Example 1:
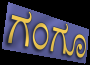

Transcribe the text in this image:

ಗಂಗೂ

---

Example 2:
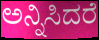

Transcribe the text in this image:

ಅನ್ನಿಸಿದರೆ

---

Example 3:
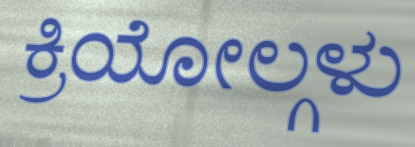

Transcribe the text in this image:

ಕ್ರಿಯೋಲ್ಗಳು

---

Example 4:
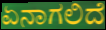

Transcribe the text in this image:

ಏನಾಗಲಿದೆ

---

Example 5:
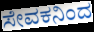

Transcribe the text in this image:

ಸೇವಕನಿಂದ